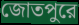
জোতপুরে